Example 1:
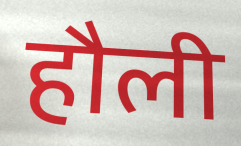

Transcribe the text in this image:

हौली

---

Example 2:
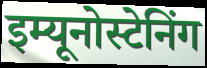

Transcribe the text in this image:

इम्यूनोस्टेनिंग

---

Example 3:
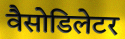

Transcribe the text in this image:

वैसोडिलेटर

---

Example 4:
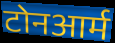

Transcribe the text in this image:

टोनआर्म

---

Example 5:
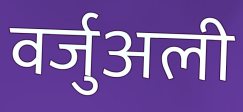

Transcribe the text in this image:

वर्जुअली